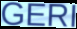
GERI